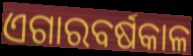
ଏଗାରବର୍ଷକାଳ